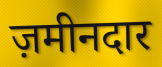
ज़मीनदार